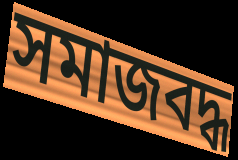
সমাজবদ্ধ